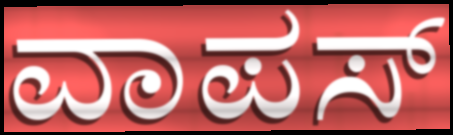
ವಾಪಸ್